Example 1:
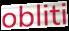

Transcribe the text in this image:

obliti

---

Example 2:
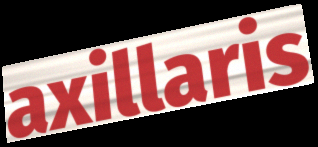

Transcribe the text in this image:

axillaris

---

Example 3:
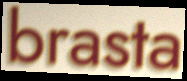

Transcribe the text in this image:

brasta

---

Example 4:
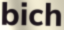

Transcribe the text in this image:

bich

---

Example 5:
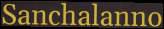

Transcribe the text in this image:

Sanchalanno